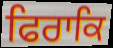
ਫਿਰਾਕਿ